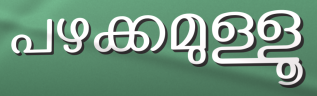
പഴക്കമുള്ളൂ